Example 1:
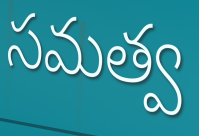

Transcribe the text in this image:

సమత్వ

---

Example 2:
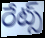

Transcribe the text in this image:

రేట్స్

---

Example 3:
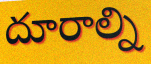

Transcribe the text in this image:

దూరాల్ని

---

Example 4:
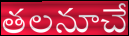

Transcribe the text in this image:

తలనూచే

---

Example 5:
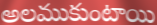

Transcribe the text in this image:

అలముకుంటాయి